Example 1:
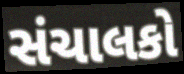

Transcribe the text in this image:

સંચાલકો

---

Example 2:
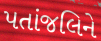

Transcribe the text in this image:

પતાંજલિને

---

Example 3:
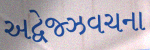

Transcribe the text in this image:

અદ્વેજ્ઝવચના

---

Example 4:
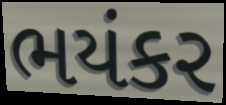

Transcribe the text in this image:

ભયંકર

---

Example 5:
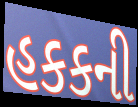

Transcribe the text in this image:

હકકની